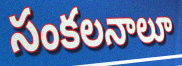
సంకలనాలూ